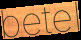
betel